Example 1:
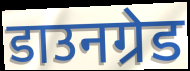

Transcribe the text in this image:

डाउनग्रेड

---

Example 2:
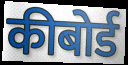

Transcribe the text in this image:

कीबोर्ड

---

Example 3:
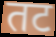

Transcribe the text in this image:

तट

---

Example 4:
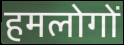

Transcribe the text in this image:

हमलोगों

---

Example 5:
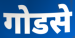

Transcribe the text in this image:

गोडसे